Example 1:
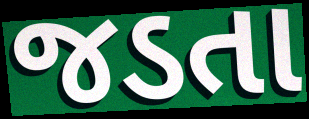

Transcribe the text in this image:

જડતા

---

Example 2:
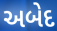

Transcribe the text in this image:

અબેદ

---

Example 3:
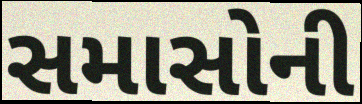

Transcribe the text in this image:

સમાસોની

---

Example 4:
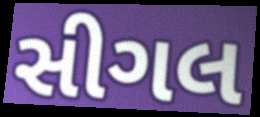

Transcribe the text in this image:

સીગલ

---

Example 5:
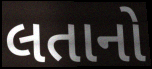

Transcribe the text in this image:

લતાનો